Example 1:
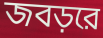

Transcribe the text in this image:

জবড়রে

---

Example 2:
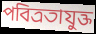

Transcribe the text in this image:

পবিত্রতাযুক্ত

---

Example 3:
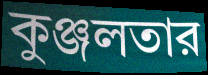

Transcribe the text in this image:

কুঞ্জলতার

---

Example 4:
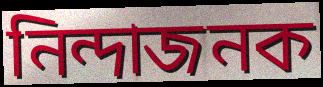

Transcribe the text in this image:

নিন্দাজনক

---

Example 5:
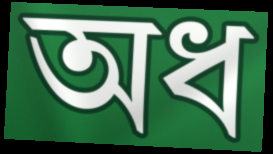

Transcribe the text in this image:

অধ